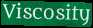
Viscosity